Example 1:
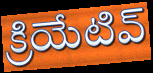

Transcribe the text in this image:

క్రియేటివ్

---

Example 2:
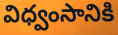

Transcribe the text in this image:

విధ్వంసానికి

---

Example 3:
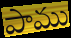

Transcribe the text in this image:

పాము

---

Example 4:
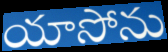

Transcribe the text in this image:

యాసోను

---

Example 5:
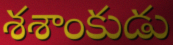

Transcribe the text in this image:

శశాంకుడు